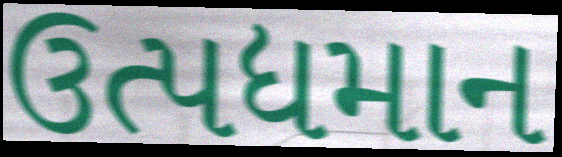
ઉત્પદ્યમાન